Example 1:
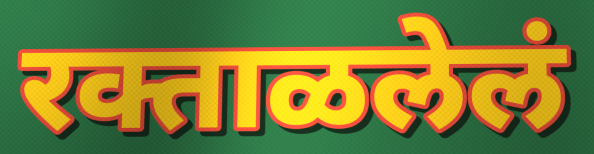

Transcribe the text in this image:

रक्ताळलेलं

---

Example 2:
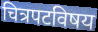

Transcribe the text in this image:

चित्रपटविषय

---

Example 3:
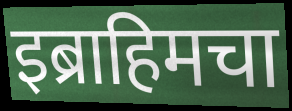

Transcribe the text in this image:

इब्राहिमचा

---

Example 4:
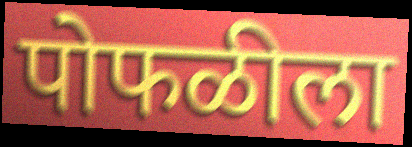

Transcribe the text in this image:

पोफळीला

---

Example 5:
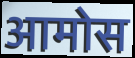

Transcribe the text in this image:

आमोस